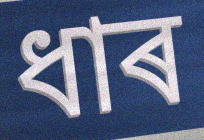
ধাৰ